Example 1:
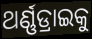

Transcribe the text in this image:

ଥର୍ଣ୍ଣଡ୍ରାଇକୁ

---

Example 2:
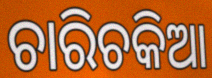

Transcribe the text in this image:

ଚାରିଚକିଆ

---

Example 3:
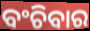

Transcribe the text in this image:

ବଂଚିବାର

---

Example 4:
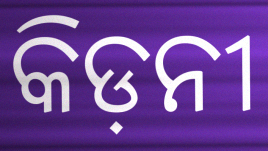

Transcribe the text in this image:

କିଡ଼ନୀ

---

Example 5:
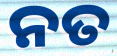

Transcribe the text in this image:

ନତ